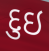
દુઇ